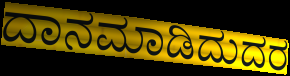
ದಾನಮಾಡಿದುದರ